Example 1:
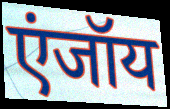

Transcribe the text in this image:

एंजॉय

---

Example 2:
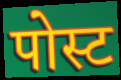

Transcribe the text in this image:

पोस्ट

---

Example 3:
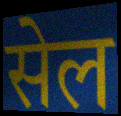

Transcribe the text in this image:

सेल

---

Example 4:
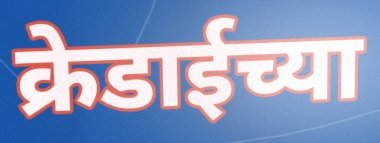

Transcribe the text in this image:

क्रेडाईच्या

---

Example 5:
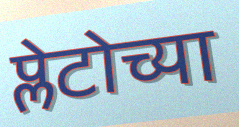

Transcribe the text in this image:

प्लेटोच्या